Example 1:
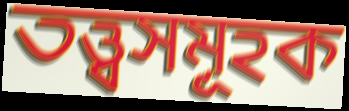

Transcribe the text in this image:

তত্ত্বসমূহক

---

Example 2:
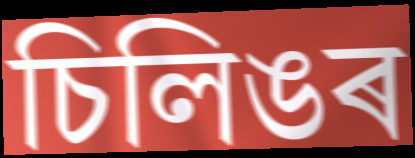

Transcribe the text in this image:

চিলিঙৰ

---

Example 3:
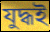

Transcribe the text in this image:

যুদ্ধই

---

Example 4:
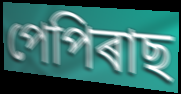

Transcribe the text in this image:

পেপিৰাছ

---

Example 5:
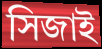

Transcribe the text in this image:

সিজাই